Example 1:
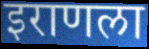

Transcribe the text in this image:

इराणला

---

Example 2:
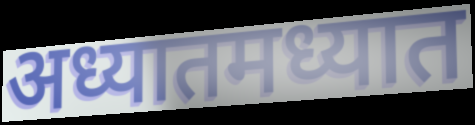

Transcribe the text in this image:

अध्यातमध्यात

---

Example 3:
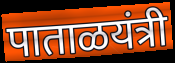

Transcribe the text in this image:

पाताळयंत्री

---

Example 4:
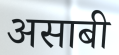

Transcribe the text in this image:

असाबी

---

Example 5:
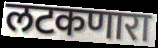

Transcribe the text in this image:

लटकणारा